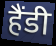
हैंडी